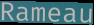
Rameau